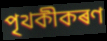
পৃথকীকৰণ